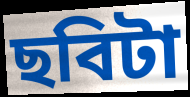
ছবিটা